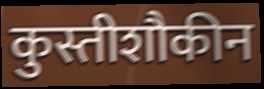
कुस्तीशौकीन